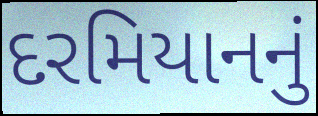
દરમિયાનનું